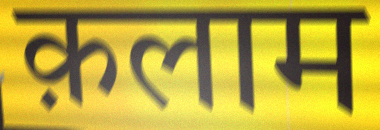
क़लाम